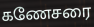
கணேசரை